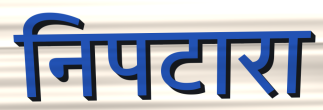
निपटारा